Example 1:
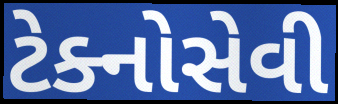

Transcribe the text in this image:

ટેક્નોસેવી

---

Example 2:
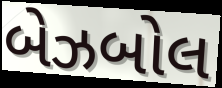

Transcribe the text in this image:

બેઝબોલ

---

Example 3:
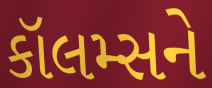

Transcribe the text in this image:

કૉલમ્સને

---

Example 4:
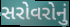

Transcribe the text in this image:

સરોવરોનું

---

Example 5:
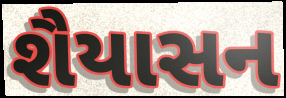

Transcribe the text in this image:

શૈયાસન